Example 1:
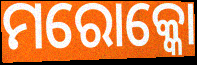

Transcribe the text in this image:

ମରୋକ୍କୋ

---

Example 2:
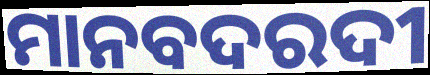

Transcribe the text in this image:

ମାନବଦରଦୀ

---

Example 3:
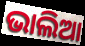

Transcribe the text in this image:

ଭାଲିଆ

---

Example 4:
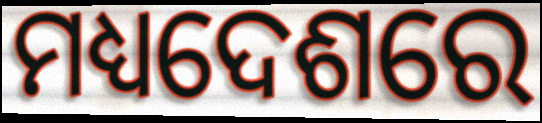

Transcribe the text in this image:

ମଧ୍ୟଦେଶରେ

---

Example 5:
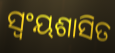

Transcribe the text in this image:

ସ୍ୱଂୟଶାସିତ